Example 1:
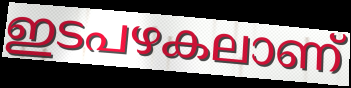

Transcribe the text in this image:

ഇടപഴകലാണ്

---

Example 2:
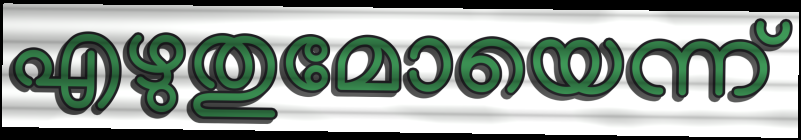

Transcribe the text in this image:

എഴുതുമോയെന്ന്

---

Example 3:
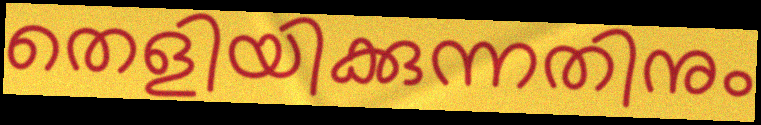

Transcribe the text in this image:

തെളിയിക്കുന്നതിനും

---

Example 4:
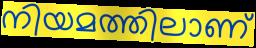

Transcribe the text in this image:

നിയമത്തിലാണ്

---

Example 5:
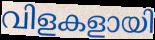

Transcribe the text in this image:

വിളകളായി